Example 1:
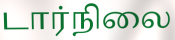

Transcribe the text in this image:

டார்நிலை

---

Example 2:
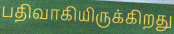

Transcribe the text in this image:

பதிவாகியிருக்கிறது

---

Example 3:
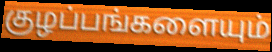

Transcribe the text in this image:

குழப்பங்களையும்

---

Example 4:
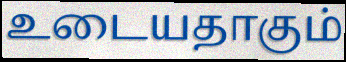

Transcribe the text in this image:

உடையதாகும்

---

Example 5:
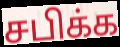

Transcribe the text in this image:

சபிக்க